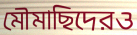
মৌমাছিদেরও